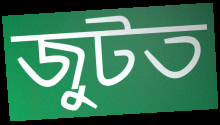
জুটত